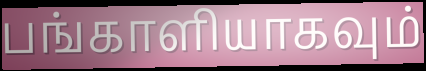
பங்காளியாகவும்